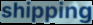
shipping